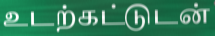
உடற்கட்டுடன்